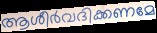
ആശീർവദിക്കണമേ